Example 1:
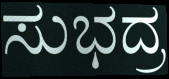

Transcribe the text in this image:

ಸುಭದ್ರ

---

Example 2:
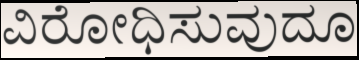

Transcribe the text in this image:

ವಿರೋಧಿಸುವುದೂ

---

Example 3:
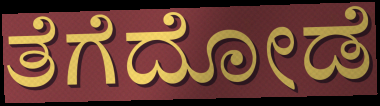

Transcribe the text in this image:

ತೆಗೆದೋಡೆ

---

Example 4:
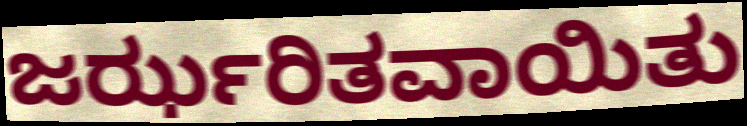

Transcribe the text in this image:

ಜರ್ಝರಿತವಾಯಿತು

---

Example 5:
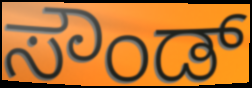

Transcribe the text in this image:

ಸೌಂಡ್